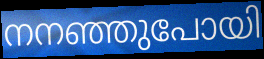
നനഞ്ഞുപോയി